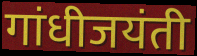
गांधीजयंती